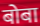
बोबा